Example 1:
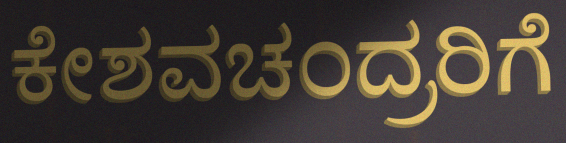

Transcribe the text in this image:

ಕೇಶವಚಂದ್ರರಿಗೆ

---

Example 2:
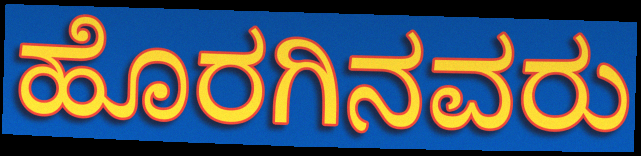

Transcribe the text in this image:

ಹೊರಗಿನವರು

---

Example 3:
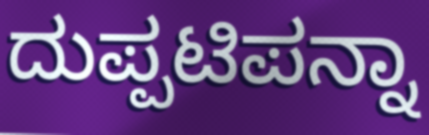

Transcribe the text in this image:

ದುಪ್ಪಟಿಪನ್ನಾ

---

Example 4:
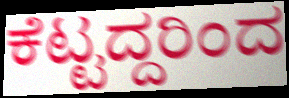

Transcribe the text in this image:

ಕೆಟ್ಟದ್ದರಿಂದ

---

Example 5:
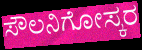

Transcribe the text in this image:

ಸೌಲನಿಗೋಸ್ಕರ